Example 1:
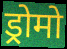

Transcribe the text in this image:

ड्रोमो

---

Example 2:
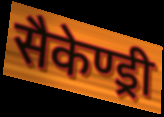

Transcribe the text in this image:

सैकेण्ड्री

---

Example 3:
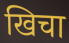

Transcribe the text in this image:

खिचा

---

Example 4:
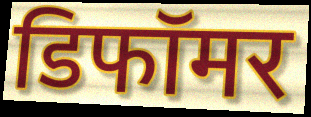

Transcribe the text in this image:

डिफॉमर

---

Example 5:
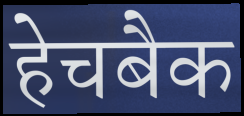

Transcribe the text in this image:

हेचबैक